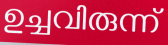
ഉച്ചവിരുന്ന്